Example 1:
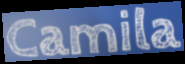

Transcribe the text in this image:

Camila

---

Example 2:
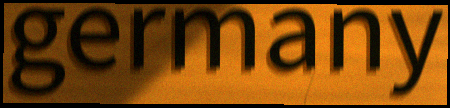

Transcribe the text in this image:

germany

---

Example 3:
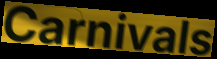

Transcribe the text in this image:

Carnivals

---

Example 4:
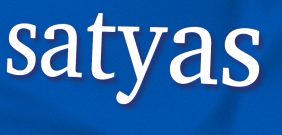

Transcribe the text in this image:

satyas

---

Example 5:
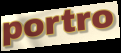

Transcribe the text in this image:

portro